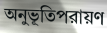
অনুভূতিপরায়ণ